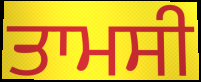
ਤਾਮਸੀ